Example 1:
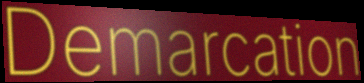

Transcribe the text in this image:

Demarcation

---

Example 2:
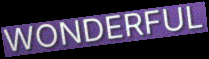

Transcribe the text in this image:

WONDERFUL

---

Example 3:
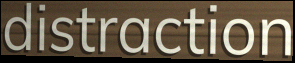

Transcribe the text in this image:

distraction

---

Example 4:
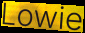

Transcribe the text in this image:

Lowie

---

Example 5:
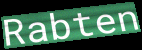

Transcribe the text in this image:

Rabten